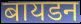
बायडन